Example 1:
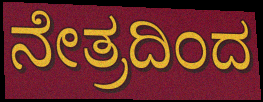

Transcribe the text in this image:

ನೇತ್ರದಿಂದ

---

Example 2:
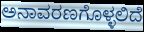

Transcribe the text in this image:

ಅನಾವರಣಗೊಳ್ಳಲಿದೆ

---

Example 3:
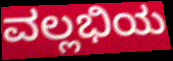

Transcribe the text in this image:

ವಲ್ಲಭಿಯ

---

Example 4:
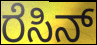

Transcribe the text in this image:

ರೆಸಿನ್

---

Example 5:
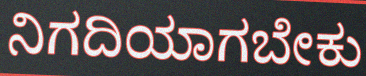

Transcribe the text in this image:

ನಿಗದಿಯಾಗಬೇಕು